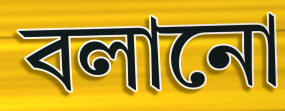
বলানো